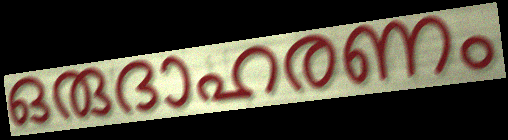
ഒരുദാഹരണം